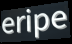
eripe